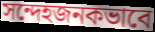
সন্দেহজনকভাবে